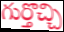
గుర్తొచ్చి